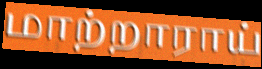
மாற்றாராய்